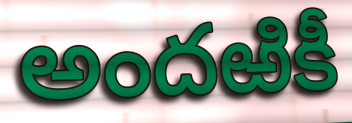
అందఱికీ